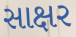
સાક્ષર